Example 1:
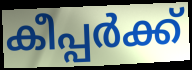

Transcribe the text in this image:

കീപ്പർക്ക്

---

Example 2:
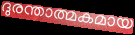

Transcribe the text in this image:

ദുരന്താത്മകമായ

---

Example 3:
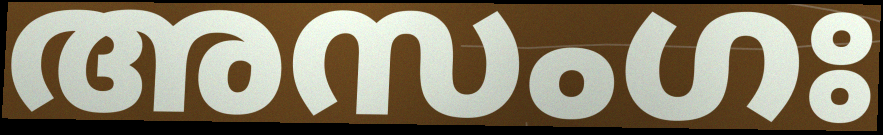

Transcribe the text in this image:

അസംഗഃ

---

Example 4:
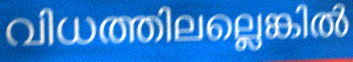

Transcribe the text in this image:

വിധത്തിലല്ലെങ്കിൽ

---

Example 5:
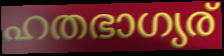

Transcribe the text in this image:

ഹതഭാഗ്യര്